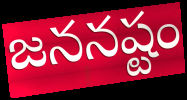
జననష్టం